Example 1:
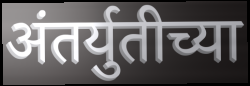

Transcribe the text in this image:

अंतर्युतीच्या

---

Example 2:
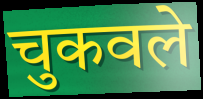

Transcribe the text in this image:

चुकवले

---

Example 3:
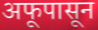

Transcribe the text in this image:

अफूपासून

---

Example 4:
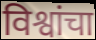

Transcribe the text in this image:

विश्वांचा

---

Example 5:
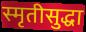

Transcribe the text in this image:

स्मृतीसुद्धा